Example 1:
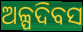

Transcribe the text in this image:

ଅଳ୍ପଦିବସ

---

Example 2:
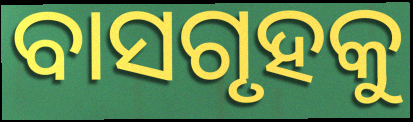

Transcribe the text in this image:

ବାସଗୃହକୁ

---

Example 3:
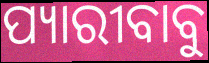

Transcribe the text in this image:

ପ୍ୟାରୀବାବୁ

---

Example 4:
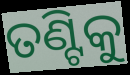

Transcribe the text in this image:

ତଣ୍ଟିକୁ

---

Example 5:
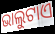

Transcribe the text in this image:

ଭାଲୁଟାଏ